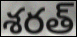
శరత్